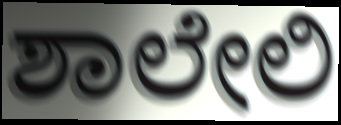
ಶಾಲೇಲಿ